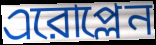
এরোপ্লেন